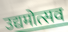
उद्यमोत्सव